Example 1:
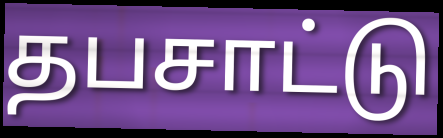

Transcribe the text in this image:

தபசாட்டு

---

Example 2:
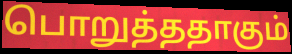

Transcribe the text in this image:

பொறுத்ததாகும்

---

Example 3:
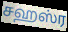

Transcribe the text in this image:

சஹஸ்ர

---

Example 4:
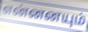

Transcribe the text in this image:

என்னனயும்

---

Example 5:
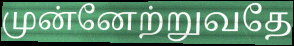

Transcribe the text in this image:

முன்னேற்றுவதே